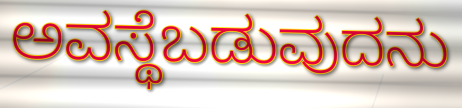
ಅವಸ್ಥೆಬಡುವುದನು